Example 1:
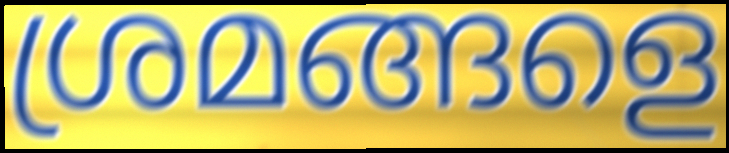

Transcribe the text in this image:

ശ്രമങ്ങളെ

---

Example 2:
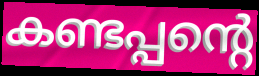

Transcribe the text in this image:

കണ്ടപ്പന്റെ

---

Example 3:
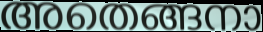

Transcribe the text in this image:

അതെങ്ങനാ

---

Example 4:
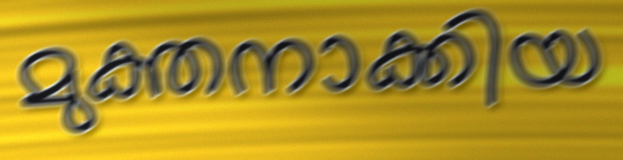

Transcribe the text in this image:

മുക്തനാക്കിയ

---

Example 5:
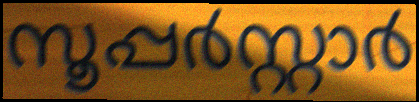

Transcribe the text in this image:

സൂപ്പർസ്റ്റാർ